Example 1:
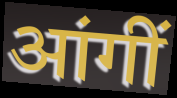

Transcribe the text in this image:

आंगीं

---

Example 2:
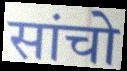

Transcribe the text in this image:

सांचो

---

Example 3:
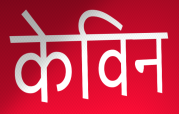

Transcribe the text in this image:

केविन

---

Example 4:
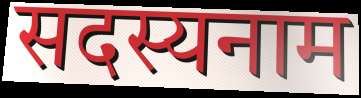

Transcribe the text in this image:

सदस्यनाम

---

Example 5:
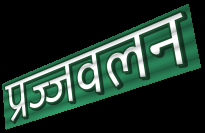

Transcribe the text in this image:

प्रज्‍जवलन